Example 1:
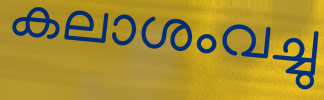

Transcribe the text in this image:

കലാശംവച്ചു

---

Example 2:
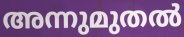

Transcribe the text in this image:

അന്നുമുതൽ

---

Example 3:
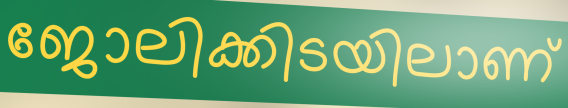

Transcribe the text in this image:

ജോലിക്കിടയിലാണ്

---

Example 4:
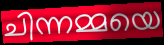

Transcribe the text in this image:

ചിന്നമ്മയെ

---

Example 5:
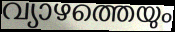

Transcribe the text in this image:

വ്യാഴത്തെയും